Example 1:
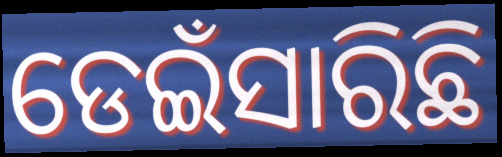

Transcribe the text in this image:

ଡେଇଁସାରିଛି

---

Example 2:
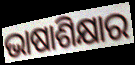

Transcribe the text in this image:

ଭାଷାଶିକ୍ଷାର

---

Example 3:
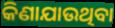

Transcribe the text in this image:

କିଣାଯାଉଥିବା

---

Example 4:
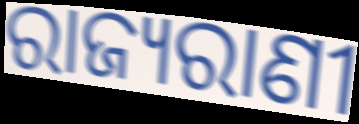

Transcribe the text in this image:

ରାଜ୍ୟରାଣୀ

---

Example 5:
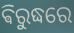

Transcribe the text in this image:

ଵିରୁଦ୍ଧରେ